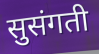
सुसंगती